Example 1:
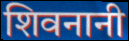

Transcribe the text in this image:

शिवनानी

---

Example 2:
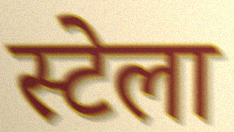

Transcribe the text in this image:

स्टेला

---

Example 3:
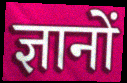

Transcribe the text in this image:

ज्ञानों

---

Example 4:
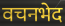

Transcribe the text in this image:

वचनभेद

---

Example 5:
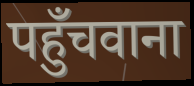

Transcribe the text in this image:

पहुँचवाना